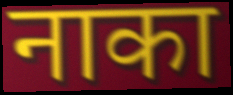
नाका